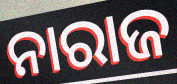
ନାରାଜ